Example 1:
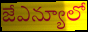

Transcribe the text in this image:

జేఎన్యూలో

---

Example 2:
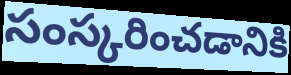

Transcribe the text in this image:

సంస్కరించడానికి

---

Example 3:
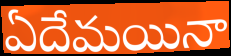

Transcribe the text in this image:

ఏదేమయినా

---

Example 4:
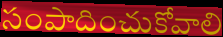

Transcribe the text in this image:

సంపాదించుకోవాలి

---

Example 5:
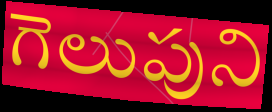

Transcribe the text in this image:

గెలుపుని